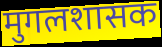
मुगलशासक